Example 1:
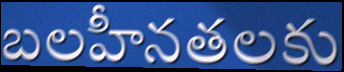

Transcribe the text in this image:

బలహీనతలకు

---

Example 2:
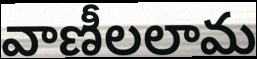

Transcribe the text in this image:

వాణీలలామ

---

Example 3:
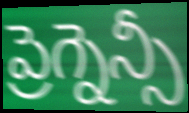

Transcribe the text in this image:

ప్రెగ్నెన్సీ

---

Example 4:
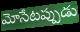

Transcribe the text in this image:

మోసేటప్పుడు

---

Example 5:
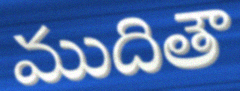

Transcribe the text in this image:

ముదితౌ